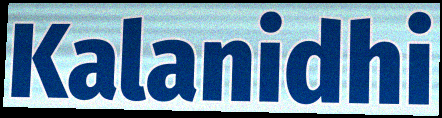
Kalanidhi